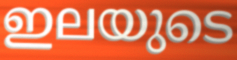
ഇലയുടെ